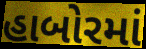
હાબોરમાં